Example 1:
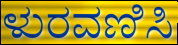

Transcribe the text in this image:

ಳುರವಣಿಸಿ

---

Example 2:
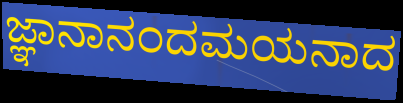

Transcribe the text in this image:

ಜ್ಞಾನಾನಂದಮಯನಾದ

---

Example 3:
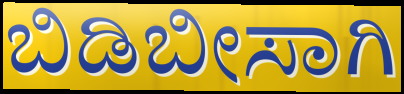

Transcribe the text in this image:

ಬಿಡಿಬೀಸಾಗಿ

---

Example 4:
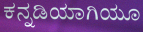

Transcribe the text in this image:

ಕನ್ನಡಿಯಾಗಿಯೂ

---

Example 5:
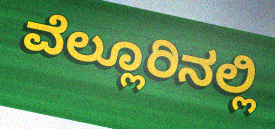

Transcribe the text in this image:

ವೆಲ್ಲೂರಿನಲ್ಲಿ